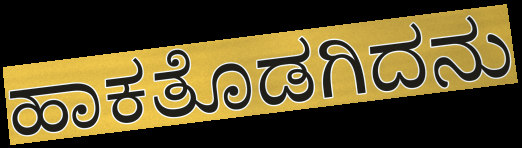
ಹಾಕತೊಡಗಿದನು